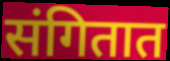
संगितात